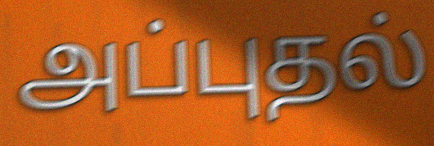
அப்புதல்